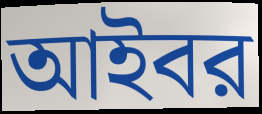
আইবর